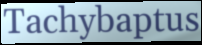
Tachybaptus